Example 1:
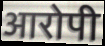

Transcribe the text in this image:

आरोपी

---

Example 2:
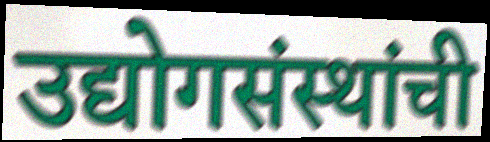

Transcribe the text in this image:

उद्योगसंस्थांची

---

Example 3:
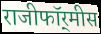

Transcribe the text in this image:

राजीफॉर्मीस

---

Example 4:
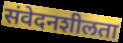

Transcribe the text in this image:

संवेदनशीलता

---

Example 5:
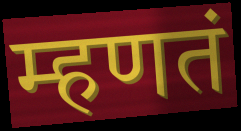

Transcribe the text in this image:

म्हणतं